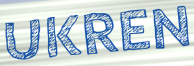
UKREN